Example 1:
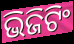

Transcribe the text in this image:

ଭିଜିଟିଂ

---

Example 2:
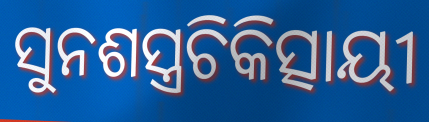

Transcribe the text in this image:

ସୁନଶସ୍ତ୍ରଚିକିତ୍ସାୟୀ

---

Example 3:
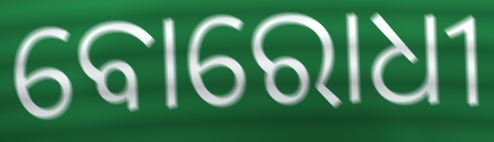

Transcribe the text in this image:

ବୋରୋଧୀ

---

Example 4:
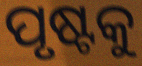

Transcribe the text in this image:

ପୃଷ୍ଟକୁ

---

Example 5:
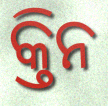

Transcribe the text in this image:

କ୍ତିନ